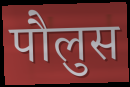
पौलुस